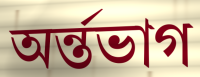
অৰ্ন্তভাগ